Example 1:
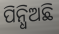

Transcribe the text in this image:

ପିନ୍ଧିଅଛି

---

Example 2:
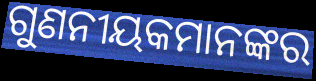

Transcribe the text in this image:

ଗୁଣନୀୟକମାନଙ୍କର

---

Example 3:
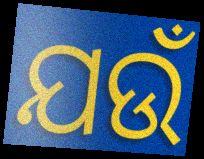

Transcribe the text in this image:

ଯଉଁ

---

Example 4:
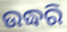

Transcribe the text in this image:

ଉଦ୍ଧରି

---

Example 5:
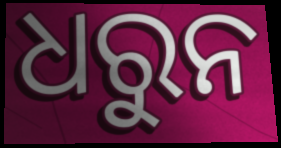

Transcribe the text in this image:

ଧରୁନ